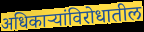
अधिकाऱ्यांविरोधातील